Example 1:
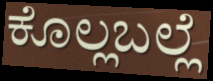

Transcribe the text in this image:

ಕೊಲ್ಲಬಲ್ಲೆ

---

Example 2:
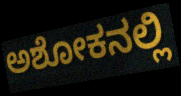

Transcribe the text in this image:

ಅಶೋಕನಲ್ಲಿ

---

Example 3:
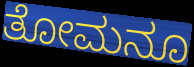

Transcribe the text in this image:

ತೋಮನೂ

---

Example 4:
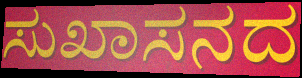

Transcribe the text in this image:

ಸುಖಾಸನದ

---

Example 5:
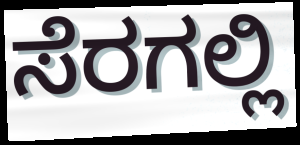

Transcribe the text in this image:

ಸೆರಗಲ್ಲಿ